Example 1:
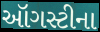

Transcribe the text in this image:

ઑગસ્ટીના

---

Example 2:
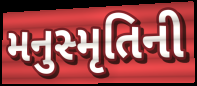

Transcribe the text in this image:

મનુસ્મૃતિની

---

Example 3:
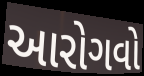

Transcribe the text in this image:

આરોગવો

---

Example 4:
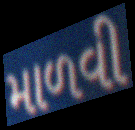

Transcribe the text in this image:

માળવી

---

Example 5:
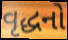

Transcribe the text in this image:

વૃદ્ધનો